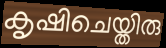
കൃഷിചെയ്തിരു